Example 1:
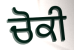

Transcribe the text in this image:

ਚੋਕੀ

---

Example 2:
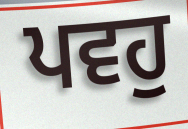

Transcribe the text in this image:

ਪਵਹੁ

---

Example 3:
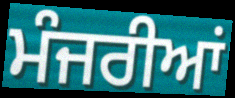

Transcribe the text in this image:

ਮੰਜਰੀਆਂ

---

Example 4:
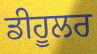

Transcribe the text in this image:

ਡੀਹੂਲਰ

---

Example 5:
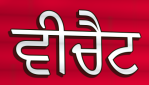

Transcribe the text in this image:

ਵੀਚੈਟ